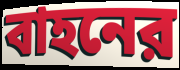
বাহনের